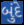
બુંદે